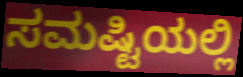
ಸಮಷ್ಟಿಯಲ್ಲಿ